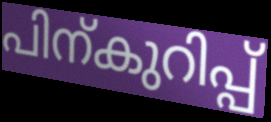
പിന്കുറിപ്പ്